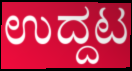
ಉದ್ದಟ